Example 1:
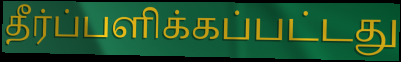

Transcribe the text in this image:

தீர்ப்பளிக்கப்பட்டது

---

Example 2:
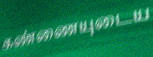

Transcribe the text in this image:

கண்ணையுடைய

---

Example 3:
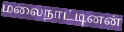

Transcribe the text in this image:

மலைநாட்டினன்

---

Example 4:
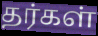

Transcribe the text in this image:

தர்கள்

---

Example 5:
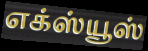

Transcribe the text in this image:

எக்ஸ்யூஸ்